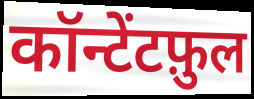
कॉन्टेंटफ़ुल